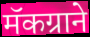
मॅकग्राने